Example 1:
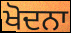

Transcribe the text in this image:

ਖੋਦਨਾ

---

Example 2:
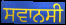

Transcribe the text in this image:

ਸਵਾਨਸੀ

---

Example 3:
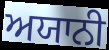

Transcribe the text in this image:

ਅਯਾਨੀ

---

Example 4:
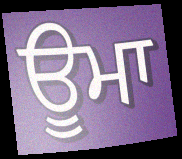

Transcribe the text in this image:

ਊਮਾ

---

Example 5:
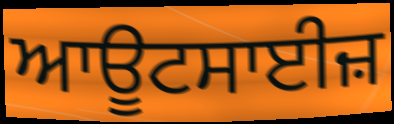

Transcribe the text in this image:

ਆਊਟਸਾਈਜ਼